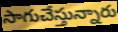
సాగుచేస్తున్నారు